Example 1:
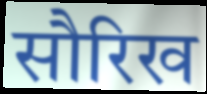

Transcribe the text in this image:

सौरिख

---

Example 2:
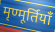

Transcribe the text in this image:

मृण्मूर्तियाँ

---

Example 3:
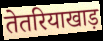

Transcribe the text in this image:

तेतरियाखाड़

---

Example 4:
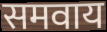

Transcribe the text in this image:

समवाय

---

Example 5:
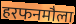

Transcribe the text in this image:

हरफनमौला